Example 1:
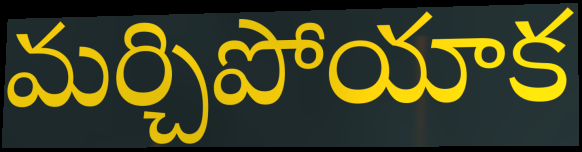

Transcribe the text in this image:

మర్చిపోయాక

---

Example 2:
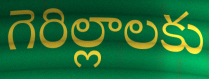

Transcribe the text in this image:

గెరిల్లాలకు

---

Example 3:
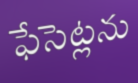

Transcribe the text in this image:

ఫేసెట్లను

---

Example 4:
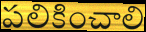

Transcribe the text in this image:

పలికించాలి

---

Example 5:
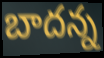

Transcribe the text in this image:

బాదన్న